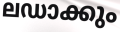
ലഡാക്കും